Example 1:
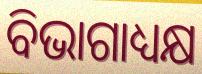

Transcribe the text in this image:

ବିଭାଗାଧ୍ୟକ୍ଷ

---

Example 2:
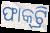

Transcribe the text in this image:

ଫାକ୍‍ଟ୍ରି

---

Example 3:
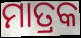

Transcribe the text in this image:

ମାତ୍ରକ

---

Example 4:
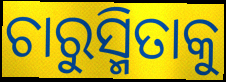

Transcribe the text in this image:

ଚାରୁସ୍ମିତାକୁ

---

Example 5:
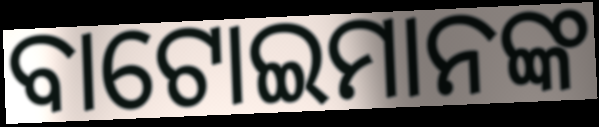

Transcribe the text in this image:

ବାଟୋଇମାନଙ୍କ